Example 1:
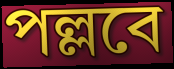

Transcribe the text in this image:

পল্লবে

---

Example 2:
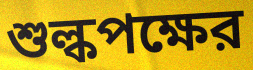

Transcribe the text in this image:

শুল্কপক্ষের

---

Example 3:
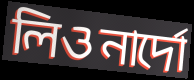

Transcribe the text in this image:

লিওনার্দো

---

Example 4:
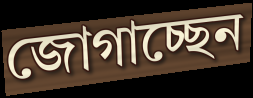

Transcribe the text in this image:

জোগাচ্ছেন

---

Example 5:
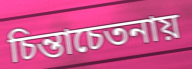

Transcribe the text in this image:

চিন্তাচেতনায়